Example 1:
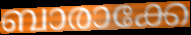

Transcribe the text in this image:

ബാരാക്കേ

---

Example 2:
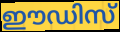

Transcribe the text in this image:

ഈഡിസ്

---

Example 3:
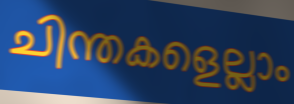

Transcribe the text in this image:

ചിന്തകളെല്ലാം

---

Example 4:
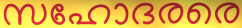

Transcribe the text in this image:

സഹോദരരെ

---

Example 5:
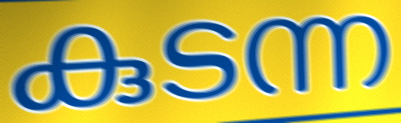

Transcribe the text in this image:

കുടന്ന